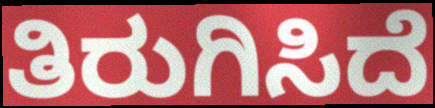
ತಿರುಗಿಸಿದೆ